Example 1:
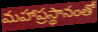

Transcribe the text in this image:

మహాప్రస్థానంతో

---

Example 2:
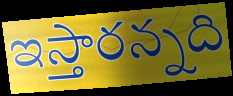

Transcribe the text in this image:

ఇస్తారన్నది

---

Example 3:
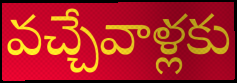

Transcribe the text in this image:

వచ్చేవాళ్లకు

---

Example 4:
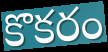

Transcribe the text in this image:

కొకరం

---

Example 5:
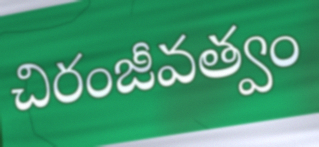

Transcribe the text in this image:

చిరంజీవత్వం